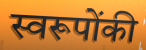
स्वरूपोंकी